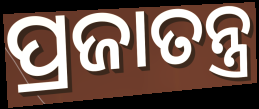
ପ୍ରଜାତନ୍ତ୍ର